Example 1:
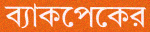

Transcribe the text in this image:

ব্যাকপেকের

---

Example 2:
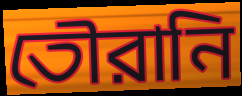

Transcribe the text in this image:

তৌরানি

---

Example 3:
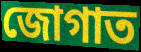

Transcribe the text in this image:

জোগাত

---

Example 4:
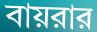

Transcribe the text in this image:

বায়রার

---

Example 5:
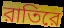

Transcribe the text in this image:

রাতিরে